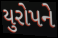
યુરોપને